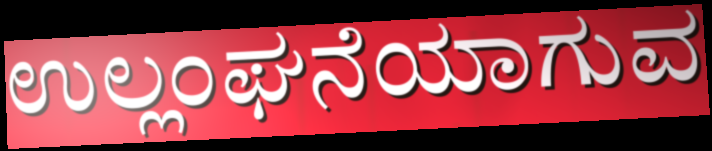
ಉಲ್ಲಂಘನೆಯಾಗುವ